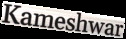
Kameshwar